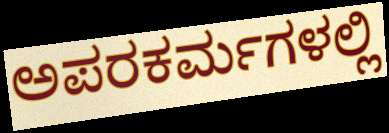
ಅಪರಕರ್ಮಗಳಲ್ಲಿ